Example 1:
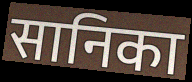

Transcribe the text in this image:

सानिका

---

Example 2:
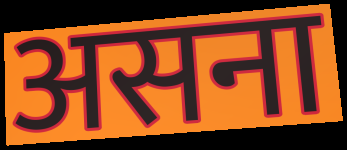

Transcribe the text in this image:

असना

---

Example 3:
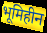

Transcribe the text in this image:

भूमिहीन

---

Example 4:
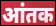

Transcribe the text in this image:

आंतक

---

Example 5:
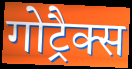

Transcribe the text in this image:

गोट्रैक्स